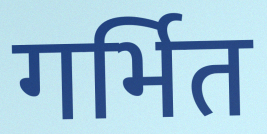
गर्भित